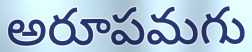
అరూపమగు